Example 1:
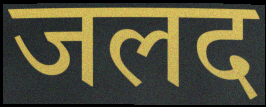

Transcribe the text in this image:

जलद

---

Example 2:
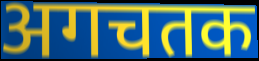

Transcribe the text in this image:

अगचतक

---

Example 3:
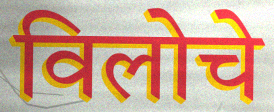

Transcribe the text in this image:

विलोचे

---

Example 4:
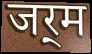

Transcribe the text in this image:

जर्म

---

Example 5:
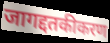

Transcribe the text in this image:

जागद्दतकीकरण